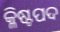
କ୍ଳିଷ୍ଟପଦ